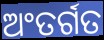
ଅଂତର୍ଗତ